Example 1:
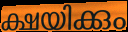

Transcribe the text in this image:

ക്ഷയിക്കും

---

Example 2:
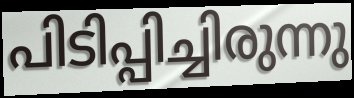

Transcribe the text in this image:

പിടിപ്പിച്ചിരുന്നു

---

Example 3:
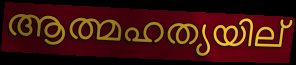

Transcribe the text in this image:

ആത്മഹത്യയില്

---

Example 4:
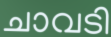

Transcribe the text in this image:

ചാവടി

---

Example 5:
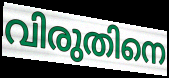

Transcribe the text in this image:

വിരുതിനെ